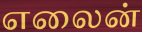
எலைன்